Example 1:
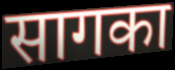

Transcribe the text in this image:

सागका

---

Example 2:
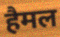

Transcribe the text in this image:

हैमल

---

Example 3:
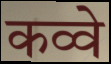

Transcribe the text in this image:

कव्वे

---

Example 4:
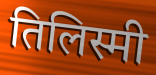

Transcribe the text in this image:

तिलिस्मी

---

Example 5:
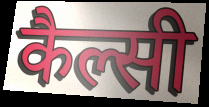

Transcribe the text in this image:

कैल्सी